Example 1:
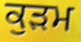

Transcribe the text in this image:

ਕੁੜਮ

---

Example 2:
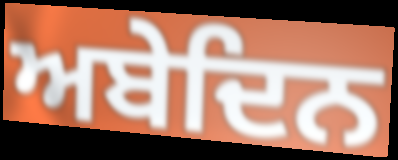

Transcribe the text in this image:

ਅਬੇਦਿਨ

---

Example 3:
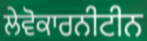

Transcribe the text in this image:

ਲੇਵੋਕਾਰਨੀਟੀਨ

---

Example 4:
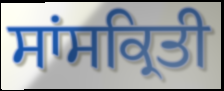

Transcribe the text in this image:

ਸਾਂਸਕ੍ਰਿਤੀ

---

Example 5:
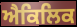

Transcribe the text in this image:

ਐਕਿਲਿਕ